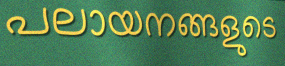
പലായനങ്ങളുടെ